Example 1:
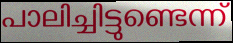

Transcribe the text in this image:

പാലിച്ചിട്ടുണ്ടെന്ന്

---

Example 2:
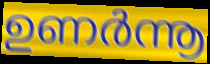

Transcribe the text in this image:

ഉണർന്നൂ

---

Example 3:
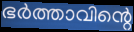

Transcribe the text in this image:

ഭർത്താവിന്റെ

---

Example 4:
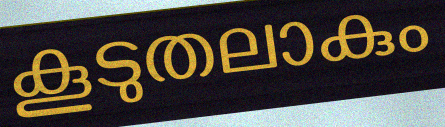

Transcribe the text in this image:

കൂടുതലാകും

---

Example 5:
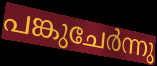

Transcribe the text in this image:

പങ്കുചേർന്നു